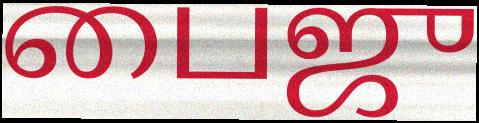
பைஜு